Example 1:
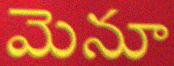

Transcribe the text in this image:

మెనూ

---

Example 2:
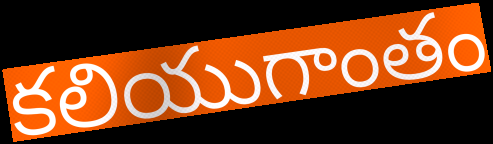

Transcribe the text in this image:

కలియుగాంతం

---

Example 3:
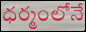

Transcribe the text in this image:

ధర్మంలోనే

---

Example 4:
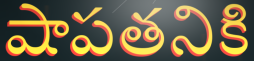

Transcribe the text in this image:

షాపతనికి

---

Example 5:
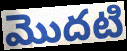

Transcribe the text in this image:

మొదటి